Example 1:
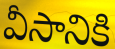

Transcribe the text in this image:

వీసానికి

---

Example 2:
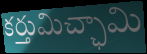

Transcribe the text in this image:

కర్తుమిచ్ఛామి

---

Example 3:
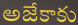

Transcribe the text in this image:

అజేకాకు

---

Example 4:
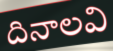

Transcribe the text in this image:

దినాలవి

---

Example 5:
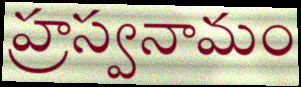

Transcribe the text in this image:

హ్రస్వనామం